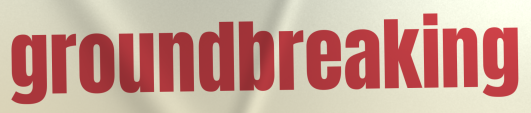
groundbreaking